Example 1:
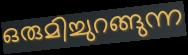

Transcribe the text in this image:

ഒരുമിച്ചുറങ്ങുന്ന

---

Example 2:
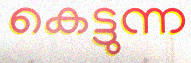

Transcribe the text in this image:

കെട്ടുന്ന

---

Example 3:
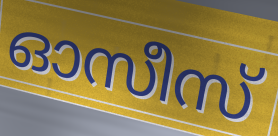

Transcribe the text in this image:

ഓസീസ്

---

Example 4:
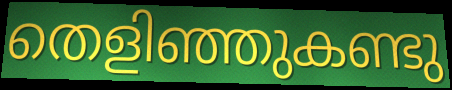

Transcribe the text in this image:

തെളിഞ്ഞുകണ്ടു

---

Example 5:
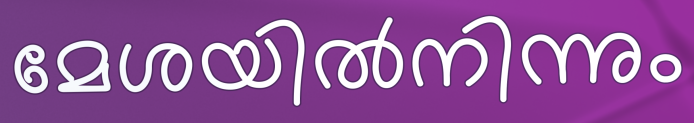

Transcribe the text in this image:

മേശയിൽനിന്നും